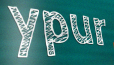
ypur